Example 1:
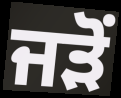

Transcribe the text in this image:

ਜੜੋਂ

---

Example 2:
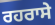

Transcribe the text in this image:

ਰਹਰਾਸੇ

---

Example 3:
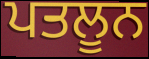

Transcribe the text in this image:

ਪਤਲੂਨ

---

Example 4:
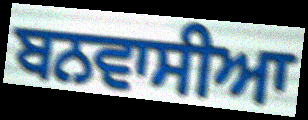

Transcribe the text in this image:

ਬਨਵਾਸੀਆ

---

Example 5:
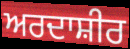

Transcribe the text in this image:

ਅਰਦਾਸ਼ੀਰ